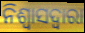
ନିଶ୍ୱାସଦ୍ୱାରା